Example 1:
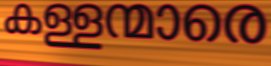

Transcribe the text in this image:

കള്ളന്മാരെ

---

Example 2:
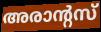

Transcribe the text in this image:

അരാന്റസ്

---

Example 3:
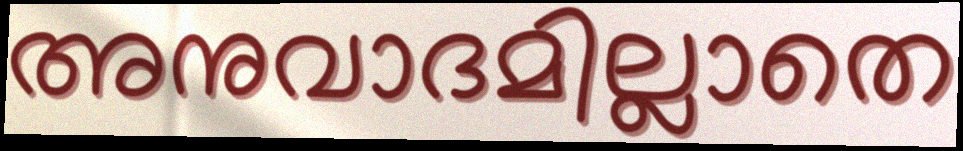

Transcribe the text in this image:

അനുവാദമില്ലാതെ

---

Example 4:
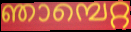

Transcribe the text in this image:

ഞാമ്പെറ്റ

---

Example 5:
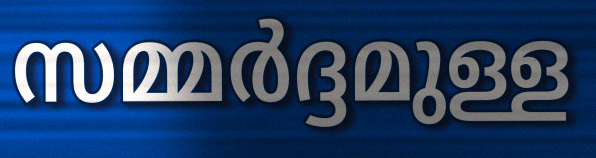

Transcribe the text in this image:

സമ്മർദ്ദമുള്ള